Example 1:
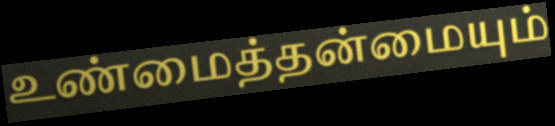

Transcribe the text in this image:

உண்மைத்தன்மையும்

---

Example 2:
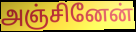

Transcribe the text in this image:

அஞ்சினேன்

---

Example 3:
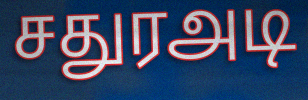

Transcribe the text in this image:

சதுரஅடி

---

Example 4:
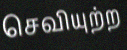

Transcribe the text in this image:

செவியுற்ற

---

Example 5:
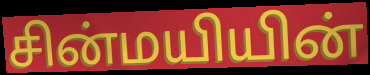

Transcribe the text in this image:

சின்மயியின்